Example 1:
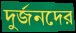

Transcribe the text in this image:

দুর্জনদের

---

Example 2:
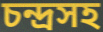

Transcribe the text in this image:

চন্দ্রসহ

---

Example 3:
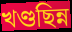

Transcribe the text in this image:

খণ্ডছিন্ন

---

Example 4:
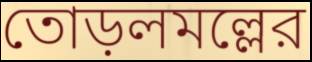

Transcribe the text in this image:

তোড়লমল্লের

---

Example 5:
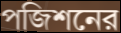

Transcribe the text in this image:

পজিশনের